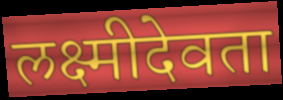
लक्ष्मीदेवता